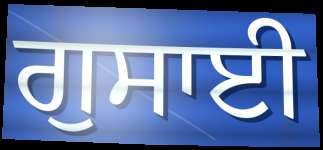
ਗੁਸਾਈ